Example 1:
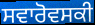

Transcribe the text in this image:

ਸਵਾਰੋਵਸਕੀ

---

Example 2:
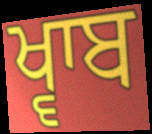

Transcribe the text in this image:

ਖ੍ਵਾਬ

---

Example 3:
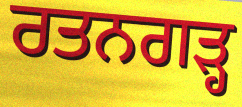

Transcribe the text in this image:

ਰਤਨਗੜ੍ਹ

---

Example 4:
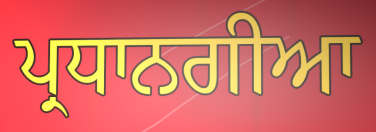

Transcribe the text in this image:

ਪ੍ਰਧਾਨਗੀਆ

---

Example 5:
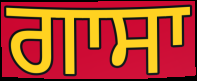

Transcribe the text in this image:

ਗਾਸਾ